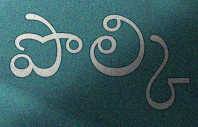
పొల్కి